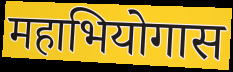
महाभियोगास